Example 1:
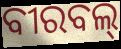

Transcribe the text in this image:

ବୀରବଲ୍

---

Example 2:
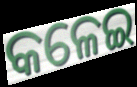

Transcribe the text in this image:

କଳେଇ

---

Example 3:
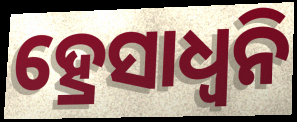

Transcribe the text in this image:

ହ୍ରେସାଧ୍ୱନି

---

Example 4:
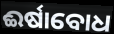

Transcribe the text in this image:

ଈର୍ଷାବୋଧ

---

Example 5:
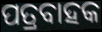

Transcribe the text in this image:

ପତ୍ରବାହକ